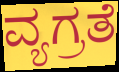
ವ್ಯಗ್ರತೆ